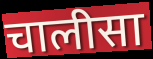
चालीसा